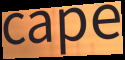
cape